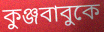
কুঞ্জবাবুকে